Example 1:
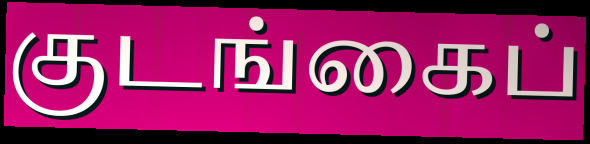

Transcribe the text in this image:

குடங்கைப்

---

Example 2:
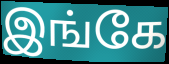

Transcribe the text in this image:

இங்கே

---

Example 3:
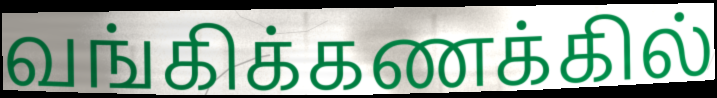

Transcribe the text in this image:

வங்கிக்கணக்கில்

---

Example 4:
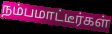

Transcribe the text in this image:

நம்பமாட்டீர்கள்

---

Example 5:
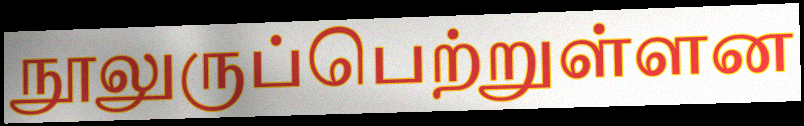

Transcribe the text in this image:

நூலுருப்பெற்றுள்ளன